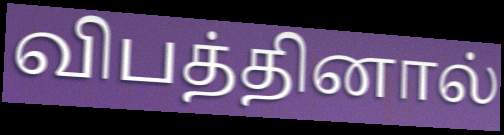
விபத்தினால்